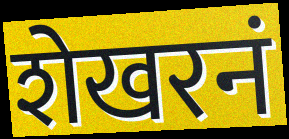
शेखरनं